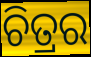
ଚିତ୍ରର